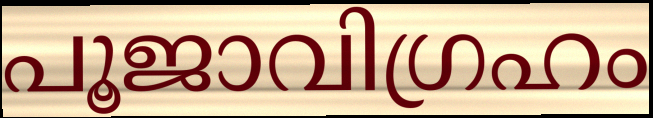
പൂജാവിഗ്രഹം